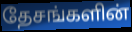
தேசங்களின்